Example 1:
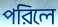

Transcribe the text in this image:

পরিলে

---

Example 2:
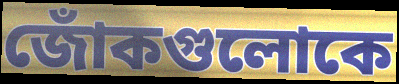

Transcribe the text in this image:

জোঁকগুলোকে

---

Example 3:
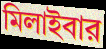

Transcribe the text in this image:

মিলাইবার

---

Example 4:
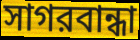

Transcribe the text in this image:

সাগরবান্ধা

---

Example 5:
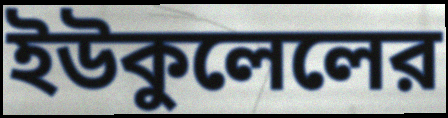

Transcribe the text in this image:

ইউকুলেলের